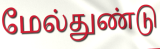
மேல்துண்டு